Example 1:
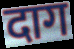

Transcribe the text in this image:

दाग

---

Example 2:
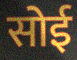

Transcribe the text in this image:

सोई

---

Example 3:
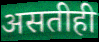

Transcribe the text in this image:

असतीही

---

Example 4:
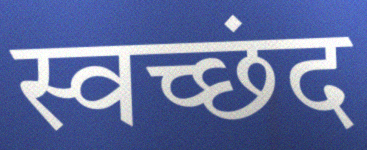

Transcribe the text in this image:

स्वच्छंद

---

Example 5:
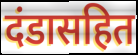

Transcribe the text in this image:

दंडासहित